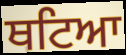
ਥਟਿਆ